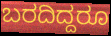
ಬರದಿದ್ದರೂ